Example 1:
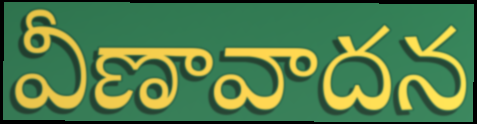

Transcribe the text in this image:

వీణావాదన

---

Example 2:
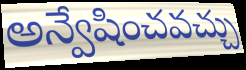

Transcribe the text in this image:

అన్వేషించవచ్చు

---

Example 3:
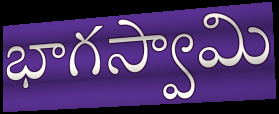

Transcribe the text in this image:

భాగస్వామి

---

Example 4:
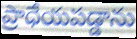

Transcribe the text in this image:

ప్రాధేయపడ్డాను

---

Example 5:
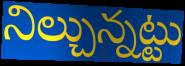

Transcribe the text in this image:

నిల్చున్నట్టు